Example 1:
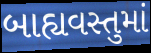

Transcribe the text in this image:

બાહ્યવસ્તુમાં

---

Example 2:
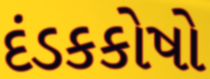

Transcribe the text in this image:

દંડકકોષો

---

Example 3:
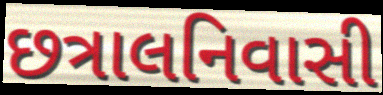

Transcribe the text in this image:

છત્રાલનિવાસી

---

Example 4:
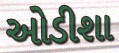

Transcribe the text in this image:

ઓડીશા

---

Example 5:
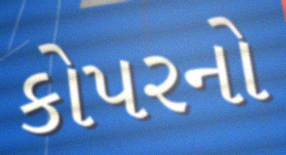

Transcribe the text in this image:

કોપરનો